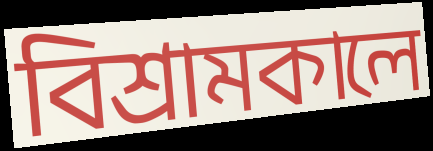
বিশ্রামকালে